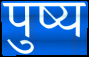
पुष्य